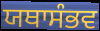
ਯਥਾਸੰਭਵ